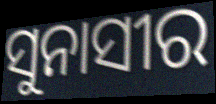
ସୁନାସୀର